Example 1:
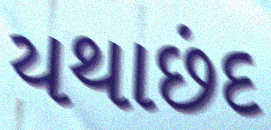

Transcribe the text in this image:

યથાછંદ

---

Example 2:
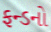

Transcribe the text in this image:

ફન્ડનો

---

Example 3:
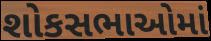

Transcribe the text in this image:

શોકસભાઓમાં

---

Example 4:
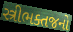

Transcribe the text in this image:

સ્ત્રીભક્તજનો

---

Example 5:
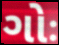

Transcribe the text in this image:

ગોઃ